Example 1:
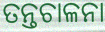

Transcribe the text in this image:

ତନ୍ତଚାଳନା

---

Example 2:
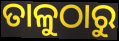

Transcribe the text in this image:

ତାଳୁଠାରୁ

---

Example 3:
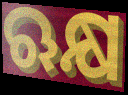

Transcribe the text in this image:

ଋକ୍ଷ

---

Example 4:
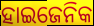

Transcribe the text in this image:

ହାଇଜେନିକ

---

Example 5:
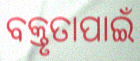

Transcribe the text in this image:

ବକ୍ତୃତାପାଇଁ